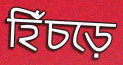
হিঁচড়ে